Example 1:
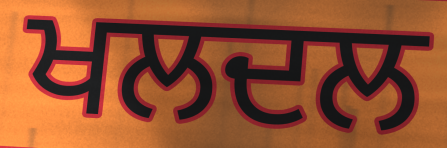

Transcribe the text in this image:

ਖਲਦਲ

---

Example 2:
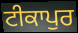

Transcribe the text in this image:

ਟੀਕਾਪੁਰ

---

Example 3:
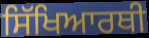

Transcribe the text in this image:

ਸਿੱਖਿਆਰਥੀ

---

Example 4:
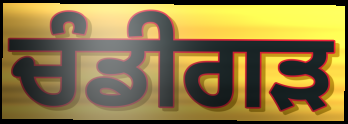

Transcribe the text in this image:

ਚੰਡੀਗੜ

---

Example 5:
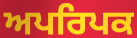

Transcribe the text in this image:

ਅਪਰਿਪਕ